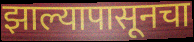
झाल्यापासूनचा